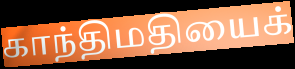
காந்திமதியைக்